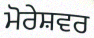
ਮੋਰੇਸ਼ਵਰ